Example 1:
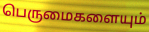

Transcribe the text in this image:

பெருமைகளையும்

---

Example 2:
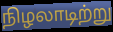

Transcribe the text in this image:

நிழலாடிற்று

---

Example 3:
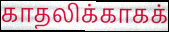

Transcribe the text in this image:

காதலிக்காகக்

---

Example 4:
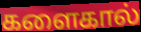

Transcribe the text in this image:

களைகால்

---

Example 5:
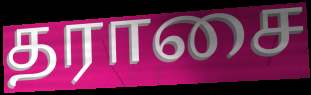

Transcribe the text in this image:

தராசை